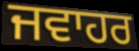
ਜਵਾਹਰ